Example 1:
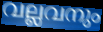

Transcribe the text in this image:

വല്ലവനും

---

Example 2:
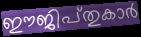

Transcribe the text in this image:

ഈജിപ്‌തുകാർ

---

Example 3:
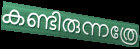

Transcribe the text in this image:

കണ്ടിരുന്നത്രേ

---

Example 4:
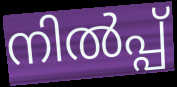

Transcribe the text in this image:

നിൽപ്പ്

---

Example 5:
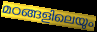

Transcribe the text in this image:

മഠങ്ങളിലെയും